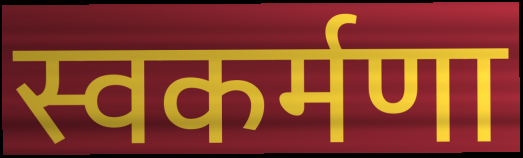
स्वकर्मणा